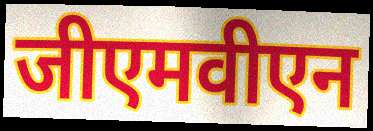
जीएमवीएन